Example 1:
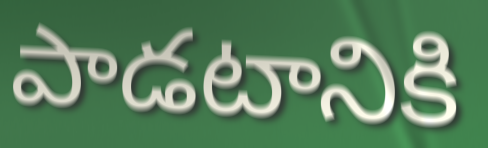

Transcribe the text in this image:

పాడటానికి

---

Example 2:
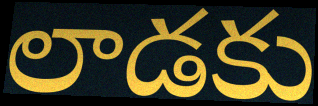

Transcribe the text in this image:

లాడకు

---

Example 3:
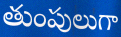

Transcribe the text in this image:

తుంపులుగా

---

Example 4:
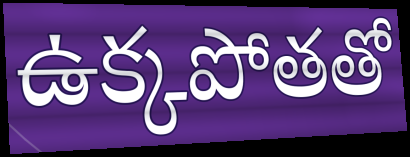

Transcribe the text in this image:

ఉక్కపోతతో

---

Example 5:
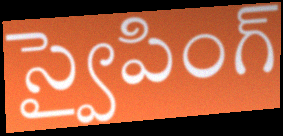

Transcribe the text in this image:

స్వైపింగ్